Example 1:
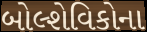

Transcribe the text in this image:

બોલ્શેવિકોના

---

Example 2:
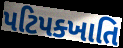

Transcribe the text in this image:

પટિપક્ખાતિ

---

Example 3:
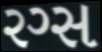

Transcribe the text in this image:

રગ્સ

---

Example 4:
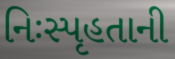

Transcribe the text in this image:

નિઃસ્પૃહતાની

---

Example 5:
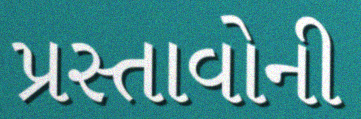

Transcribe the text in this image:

પ્રસ્તાવોની